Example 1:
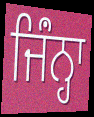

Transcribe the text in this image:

ਜਿੰਂਨ੍ਹਾ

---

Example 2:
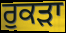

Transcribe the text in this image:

ਰੁਕੜਾ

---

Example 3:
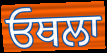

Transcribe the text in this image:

ਓਥਲਾ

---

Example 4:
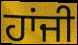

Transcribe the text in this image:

ਹਾਂਜੀ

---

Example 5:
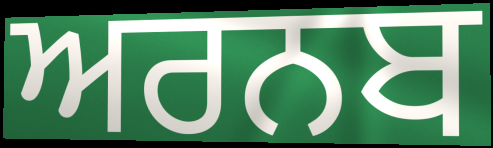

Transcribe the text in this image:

ਅਰਨਬ